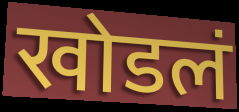
खोडलं